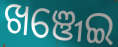
ଖଞ୍ଜେଇ